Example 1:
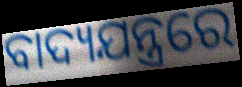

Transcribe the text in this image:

ବାଦ୍ୟଯନ୍ତ୍ରରେ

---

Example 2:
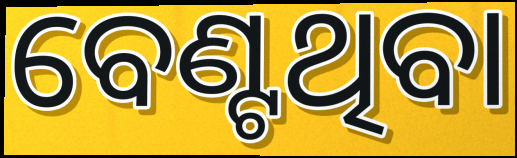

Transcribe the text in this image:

ବେଣ୍ଟଥିବା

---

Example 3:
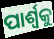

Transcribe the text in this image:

ପାର୍ଶ୍ଵକୁ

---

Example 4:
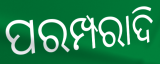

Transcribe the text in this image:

ପରମ୍ପରାଦି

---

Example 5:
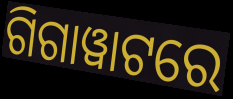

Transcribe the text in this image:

ଗିଗାୱାଟରେ